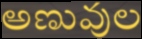
అణువుల